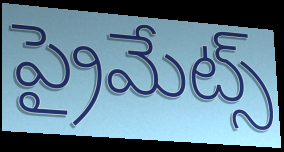
ప్రైమేట్స్